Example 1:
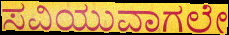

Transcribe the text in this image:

ಸವಿಯುವಾಗಲೇ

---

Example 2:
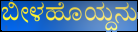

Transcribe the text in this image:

ಬೀಳಹೊಯ್ದನು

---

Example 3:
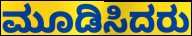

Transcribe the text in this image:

ಮೂಡಿಸಿದರು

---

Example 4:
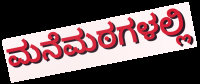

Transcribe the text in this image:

ಮನೆಮಠಗಳಲ್ಲಿ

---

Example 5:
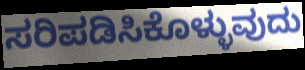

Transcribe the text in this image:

ಸರಿಪಡಿಸಿಕೊಳ್ಳುವುದು